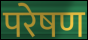
परेषण